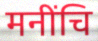
मनींचि